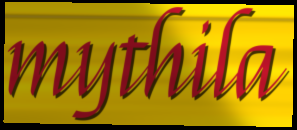
mythila